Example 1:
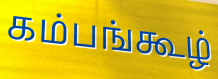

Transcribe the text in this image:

கம்பங்கூழ்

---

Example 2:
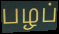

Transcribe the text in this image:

பழப்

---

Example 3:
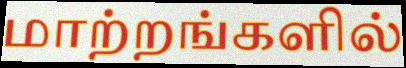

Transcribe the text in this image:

மாற்றங்களில்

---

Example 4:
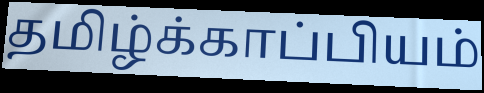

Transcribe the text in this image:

தமிழ்க்காப்பியம்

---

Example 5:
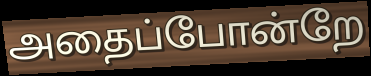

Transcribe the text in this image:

அதைப்போன்றே